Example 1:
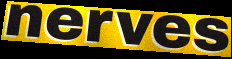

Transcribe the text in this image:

nerves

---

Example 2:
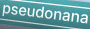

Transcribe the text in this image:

pseudonana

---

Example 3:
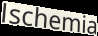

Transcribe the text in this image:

Ischemia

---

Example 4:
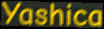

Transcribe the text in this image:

Yashica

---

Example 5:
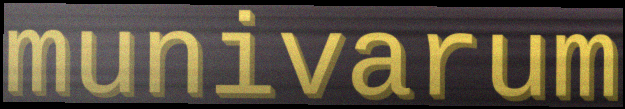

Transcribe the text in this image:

munivarum